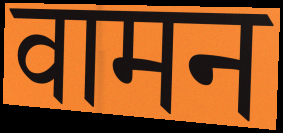
वामन